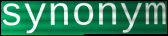
synonym